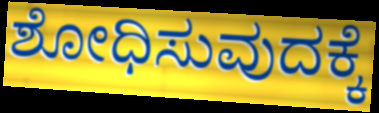
ಶೋಧಿಸುವುದಕ್ಕೆ